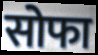
सोफा